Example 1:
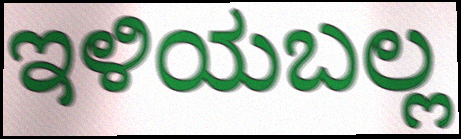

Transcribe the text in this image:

ಇಳಿಯಬಲ್ಲ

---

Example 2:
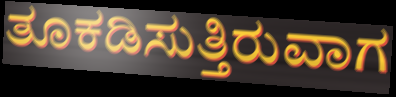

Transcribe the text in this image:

ತೂಕಡಿಸುತ್ತಿರುವಾಗ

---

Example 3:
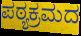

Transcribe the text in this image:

ಪಠ್ಯಕ್ರಮದ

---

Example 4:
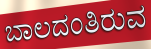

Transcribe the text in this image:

ಬಾಲದಂತಿರುವ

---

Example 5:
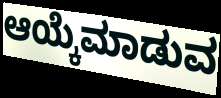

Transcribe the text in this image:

ಆಯ್ಕೆಮಾಡುವ